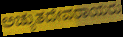
ಅಚ್ಯುತದೇವರಾಯರು